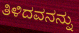
ತಿಳಿದವನನ್ನು